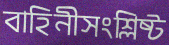
বাহিনীসংশ্লিষ্ট